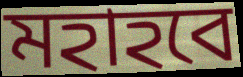
মহাহবে